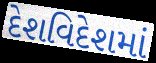
દેશવિદેશમાં